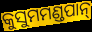
କୁସୁମମଣ୍ଡପାନ୍